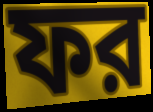
ফর